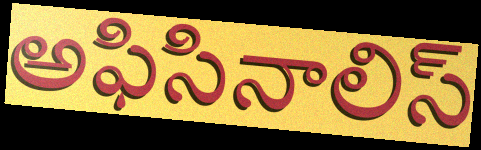
అఫిసినాలిస్